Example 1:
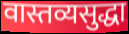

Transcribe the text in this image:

वास्तव्यसुद्धा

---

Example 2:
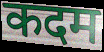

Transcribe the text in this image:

कदम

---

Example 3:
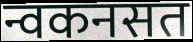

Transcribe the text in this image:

न्वकनसत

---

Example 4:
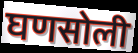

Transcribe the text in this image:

घणसोली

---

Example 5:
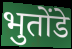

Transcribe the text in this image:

भुतोंडे